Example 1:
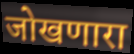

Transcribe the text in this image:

जोखणारा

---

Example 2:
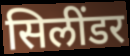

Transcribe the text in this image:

सिलींडर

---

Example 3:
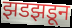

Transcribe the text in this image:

झडझडून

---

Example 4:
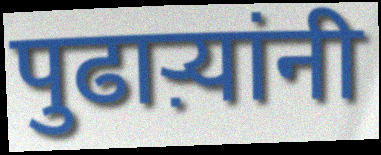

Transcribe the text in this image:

पुढाऱ्‍यांनी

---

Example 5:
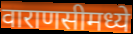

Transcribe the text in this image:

वाराणसीमध्ये